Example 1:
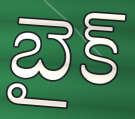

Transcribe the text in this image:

బైక్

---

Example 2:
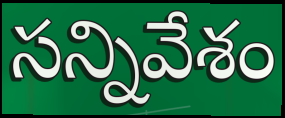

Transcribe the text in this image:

సన్నివేశం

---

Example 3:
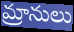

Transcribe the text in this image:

మ్రానులు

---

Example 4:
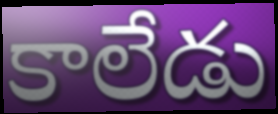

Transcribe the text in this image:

కాలేడు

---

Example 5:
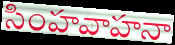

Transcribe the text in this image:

సింహవాహనా